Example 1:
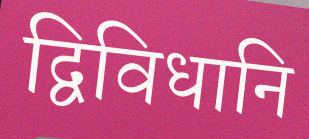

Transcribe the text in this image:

द्विविधानि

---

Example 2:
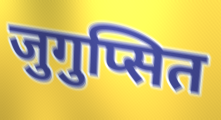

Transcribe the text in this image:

जुगुप्सित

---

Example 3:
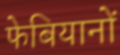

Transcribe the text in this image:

फेबियानों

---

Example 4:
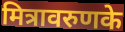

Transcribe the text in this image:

मित्रावरुणके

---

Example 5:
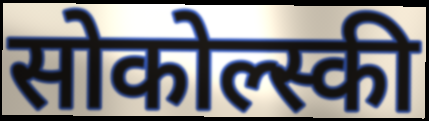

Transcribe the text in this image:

सोकोल्स्की